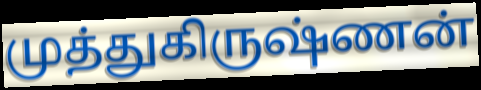
முத்துகிருஷ்ணன்